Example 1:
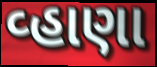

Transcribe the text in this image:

વ્હાણા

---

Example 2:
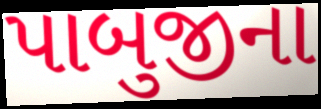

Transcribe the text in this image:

પાબુજીના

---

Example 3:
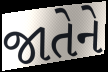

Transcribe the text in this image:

જાતેને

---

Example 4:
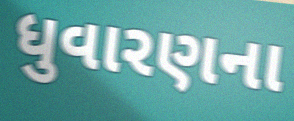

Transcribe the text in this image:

ધુવારણના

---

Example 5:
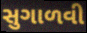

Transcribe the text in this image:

સુગાળવી